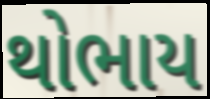
થોભાય